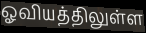
ஓவியத்திலுள்ள